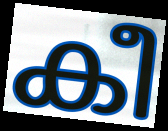
കീ